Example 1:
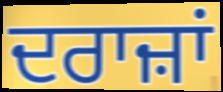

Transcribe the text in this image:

ਦਰਾਜ਼ਾਂ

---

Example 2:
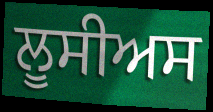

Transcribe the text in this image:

ਲੂਸੀਅਸ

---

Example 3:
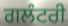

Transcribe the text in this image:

ਗਲੰਟਰੀ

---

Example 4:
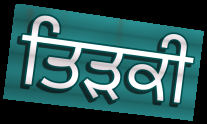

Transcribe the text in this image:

ਤਿੜਕੀ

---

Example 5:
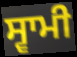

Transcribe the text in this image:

ਸ੍ਵਾਮੀ